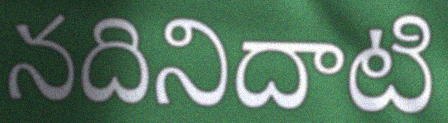
నదినిదాటి